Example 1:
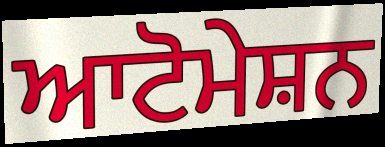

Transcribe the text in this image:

ਆਟੋਮੇਸ਼ਨ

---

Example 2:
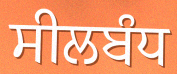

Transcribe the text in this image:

ਸੀਲਬੰਧ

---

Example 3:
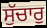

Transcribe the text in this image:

ਸੁੱਚਾਰੁ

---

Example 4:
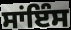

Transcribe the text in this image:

ਸਾਂਇੰਸ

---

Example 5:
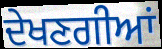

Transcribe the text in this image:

ਦੇਖਣਗੀਆਂ